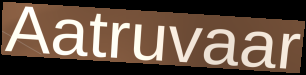
Aatruvaar